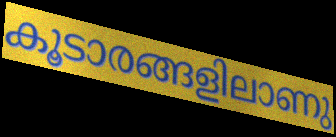
കൂടാരങ്ങളിലാണു